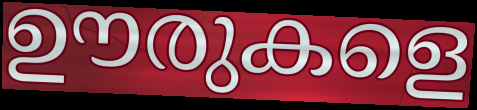
ഊരുകളെ